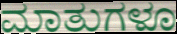
ಮಾತುಗಳೂ